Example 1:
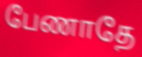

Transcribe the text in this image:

பேணாதே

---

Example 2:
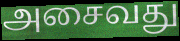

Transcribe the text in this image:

அசைவது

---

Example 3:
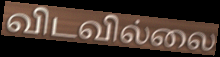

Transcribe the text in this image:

விடவில்லை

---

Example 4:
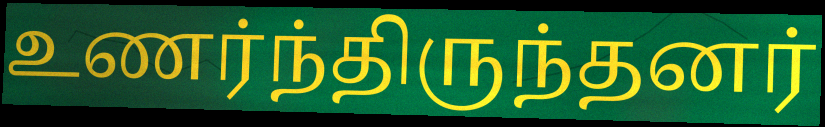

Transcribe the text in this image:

உணர்ந்திருந்தனர்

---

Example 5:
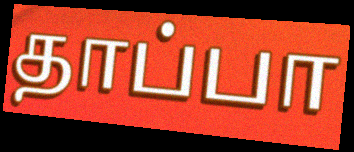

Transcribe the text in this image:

தாப்பா